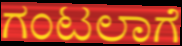
ಗಂಟಲಾಗೆ